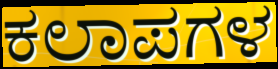
ಕಲಾಪಗಳ